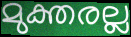
മുക്തരല്ല